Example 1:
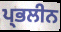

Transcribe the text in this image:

ਪ੍ਭਲੀਨ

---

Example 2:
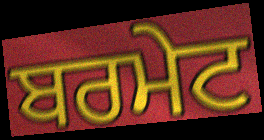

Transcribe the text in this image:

ਬਰਮੇਟ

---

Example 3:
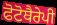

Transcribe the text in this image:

ਫੋਟੋਥੈਰੇਪੀ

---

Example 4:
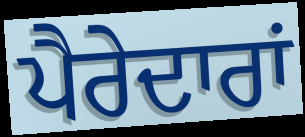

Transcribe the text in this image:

ਪੈਰੇਦਾਰਾਂ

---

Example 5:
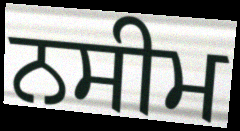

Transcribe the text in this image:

ਨਸੀਮ